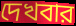
দেখবার